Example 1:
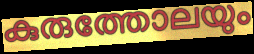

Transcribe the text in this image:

കുരുത്തോലയും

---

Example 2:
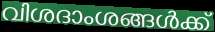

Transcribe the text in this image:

വിശദാംശങ്ങൾക്ക്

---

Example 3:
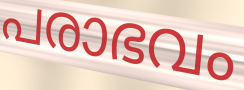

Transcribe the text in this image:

പരാഭവം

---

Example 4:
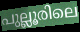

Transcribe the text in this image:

പുല്ലൂരിലെ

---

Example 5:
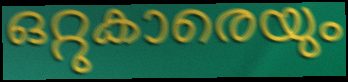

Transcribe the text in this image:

ഒറ്റുകാരെയും